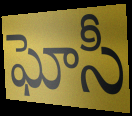
ఘోసీ